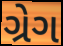
ગ્રેગ